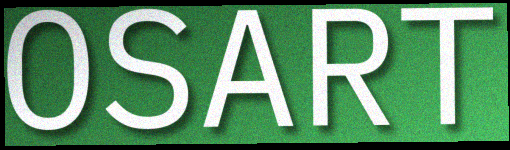
OSART